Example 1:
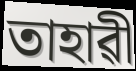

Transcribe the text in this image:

তাহাৱী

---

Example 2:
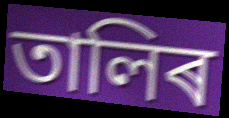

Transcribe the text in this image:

তালিৰ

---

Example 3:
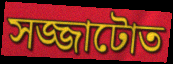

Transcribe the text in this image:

সজ্জাটোত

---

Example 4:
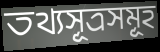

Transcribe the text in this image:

তথ্যসূত্ৰসমূহ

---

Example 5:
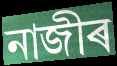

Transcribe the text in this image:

নাজীৰ